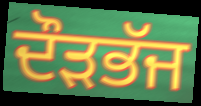
ਦੌੜਭੱਜ